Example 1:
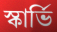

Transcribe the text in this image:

স্কার্ভি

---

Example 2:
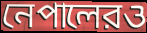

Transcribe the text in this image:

নেপালেরও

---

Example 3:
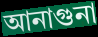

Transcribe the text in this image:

আনাগুনা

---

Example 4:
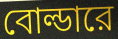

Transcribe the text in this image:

বোল্ডারে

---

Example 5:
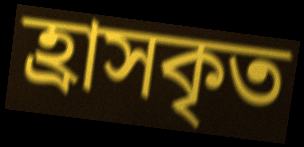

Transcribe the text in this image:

হ্রাসকৃত